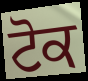
ਟੋਕ